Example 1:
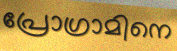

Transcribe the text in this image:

പ്രോഗ്രാമിനെ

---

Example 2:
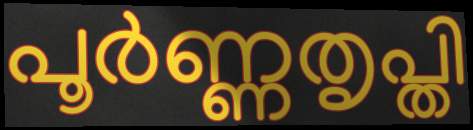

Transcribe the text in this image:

പൂർണ്ണതൃപ്തി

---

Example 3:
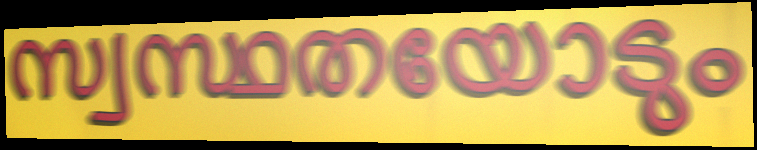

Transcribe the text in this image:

സ്വസ്ഥതയോടും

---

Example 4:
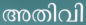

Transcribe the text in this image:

അതിവി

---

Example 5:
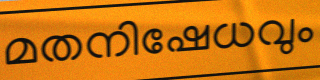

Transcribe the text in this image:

മതനിഷേധവും